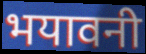
भयावनी